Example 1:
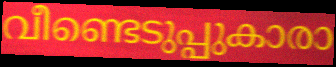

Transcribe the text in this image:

വീണ്ടെടുപ്പുകാരാ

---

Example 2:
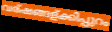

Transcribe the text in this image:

വര്ഷങ്ങള്ക്കിപ്പുറം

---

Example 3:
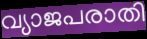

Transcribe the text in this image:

വ്യാജപരാതി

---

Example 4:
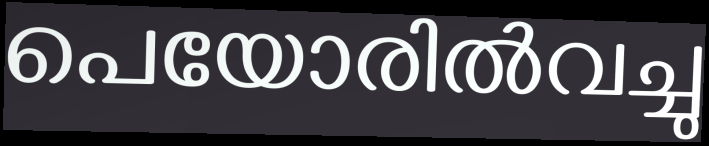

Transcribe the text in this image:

പെയോരിൽവച്ചു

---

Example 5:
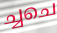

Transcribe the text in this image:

ച്ചചെ